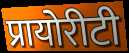
प्रायोरीटी